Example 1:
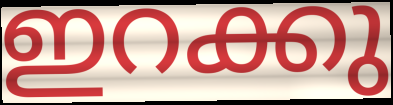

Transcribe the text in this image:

ഇറക്കു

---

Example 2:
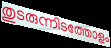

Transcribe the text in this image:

തുടരുന്നിടത്തോളം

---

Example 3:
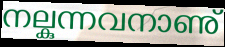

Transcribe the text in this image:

നല്കുന്നവനാണു്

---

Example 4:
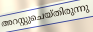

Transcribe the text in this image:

അറസ്റ്റുചെയ്തിരുന്നു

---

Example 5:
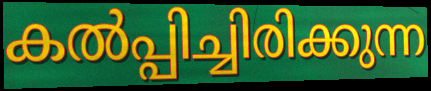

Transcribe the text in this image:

കൽപ്പിച്ചിരിക്കുന്ന